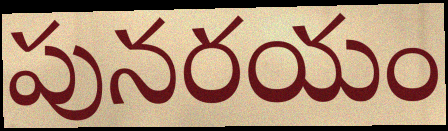
పునరయం